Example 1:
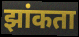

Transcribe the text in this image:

झांकता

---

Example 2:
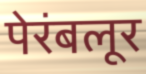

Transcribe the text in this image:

पेरंबलूर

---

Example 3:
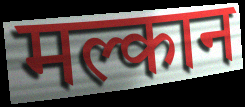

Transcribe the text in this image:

मल्कान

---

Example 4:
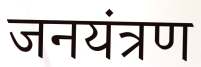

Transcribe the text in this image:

जनयंत्रण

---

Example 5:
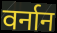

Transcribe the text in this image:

वर्नान